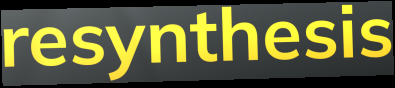
resynthesis